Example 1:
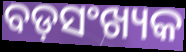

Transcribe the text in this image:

ବଡ଼ସଂଖ୍ୟକ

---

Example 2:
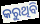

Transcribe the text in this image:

କରୁଥିବି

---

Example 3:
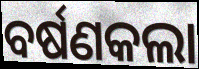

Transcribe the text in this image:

ବର୍ଷଣକଲା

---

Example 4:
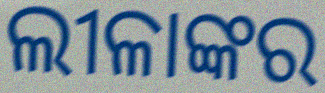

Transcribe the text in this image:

ଲୀଳାଙ୍କର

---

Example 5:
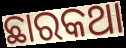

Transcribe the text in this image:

ଛାରକଥା